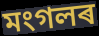
মংগলৰ